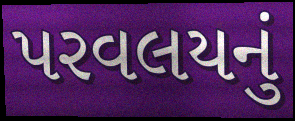
પરવલયનું